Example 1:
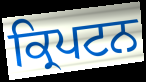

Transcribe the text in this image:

ਕ੍ਰਿਪਟਨ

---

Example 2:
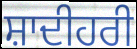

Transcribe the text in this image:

ਸ਼ਾਦੀਹਰੀ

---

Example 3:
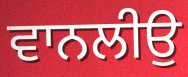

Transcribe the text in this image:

ਵਾਨਲੀਉ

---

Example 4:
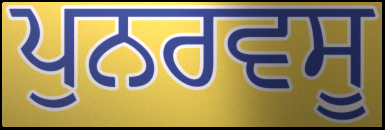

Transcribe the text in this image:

ਪੁਨਰਵਸੂ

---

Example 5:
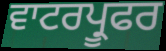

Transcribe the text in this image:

ਵਾਟਰਪ੍ਰੂਫਰ